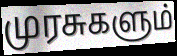
முரசுகளும்